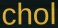
chol